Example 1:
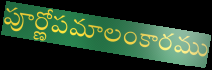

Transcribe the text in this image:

పూర్ణోపమాలంకారము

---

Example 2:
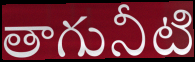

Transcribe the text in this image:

తాగునీటి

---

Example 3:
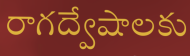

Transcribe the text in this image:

రాగద్వేషాలకు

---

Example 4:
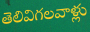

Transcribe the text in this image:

తెలివిగలవాళ్లు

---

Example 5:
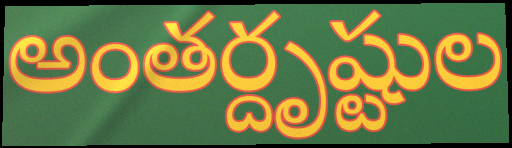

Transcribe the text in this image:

అంతర్దృష్టుల